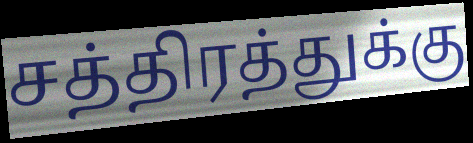
சத்திரத்துக்கு